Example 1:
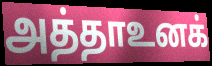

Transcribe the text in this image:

அத்தாஉனக்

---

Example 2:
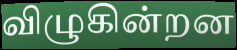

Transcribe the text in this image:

விழுகின்றன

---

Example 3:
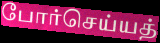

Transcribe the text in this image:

போர்செய்யத்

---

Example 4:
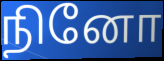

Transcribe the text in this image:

நினோ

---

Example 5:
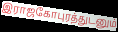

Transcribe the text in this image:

இராஜகோபுரத்துடனும்